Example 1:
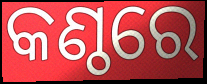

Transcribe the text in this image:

କଣ୍ଠରେ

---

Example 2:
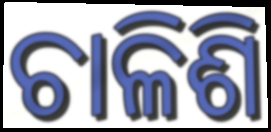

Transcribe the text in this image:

ଚାଳିଶି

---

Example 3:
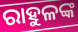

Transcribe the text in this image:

ରାହୁଳଙ୍କ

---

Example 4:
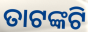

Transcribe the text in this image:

ତାଟଙ୍କଟି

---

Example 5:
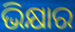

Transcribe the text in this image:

ଭିକ୍ଷାର